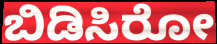
ಬಿಡಿಸಿರೋ